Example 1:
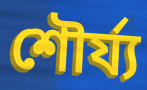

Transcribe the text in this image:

শৌৰ্য্য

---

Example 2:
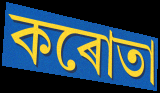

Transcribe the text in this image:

কৰোতা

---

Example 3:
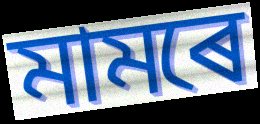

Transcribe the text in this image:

মামৰে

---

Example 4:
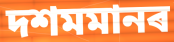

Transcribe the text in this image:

দশমমানৰ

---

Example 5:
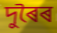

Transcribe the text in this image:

দুৰৈৰ